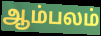
ஆம்பலம்